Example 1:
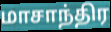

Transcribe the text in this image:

மாசாந்திர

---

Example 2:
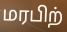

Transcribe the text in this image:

மரபிற்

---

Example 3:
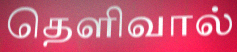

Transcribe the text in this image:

தெளிவால்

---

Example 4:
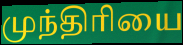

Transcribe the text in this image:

முந்திரியை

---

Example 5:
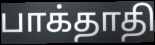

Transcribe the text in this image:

பாக்தாதி